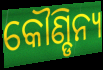
କୌଣ୍ଡିନ୍ୟ